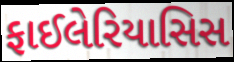
ફાઈલેરિયાસિસ